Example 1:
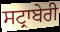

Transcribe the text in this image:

ਸਟ੍ਰਾਬੇਰੀ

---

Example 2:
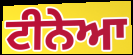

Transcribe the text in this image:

ਟੀਨੇਆ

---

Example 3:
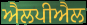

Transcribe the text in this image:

ਐਲਪੀਐਲ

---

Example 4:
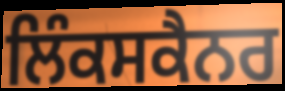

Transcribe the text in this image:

ਲਿੰਕਸਕੈਨਰ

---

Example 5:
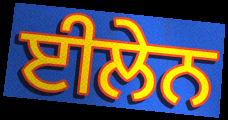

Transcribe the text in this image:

ਈਲੇਨ